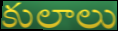
కులాలు